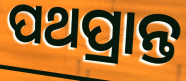
ପଥପ୍ରାନ୍ତ